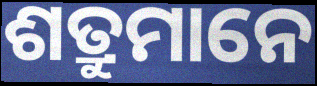
ଶତ୍ରୁମାନେ